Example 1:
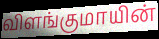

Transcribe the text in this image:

விளங்குமாயின்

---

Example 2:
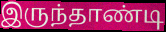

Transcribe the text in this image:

இருந்தாண்டி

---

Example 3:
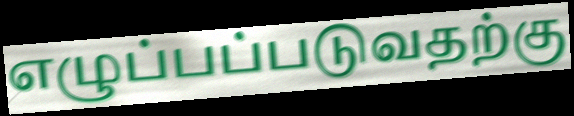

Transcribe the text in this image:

எழுப்பப்படுவதற்கு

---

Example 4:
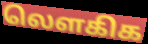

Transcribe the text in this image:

லௌகிக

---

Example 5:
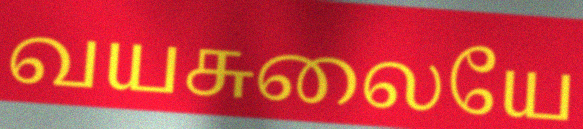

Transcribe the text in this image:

வயசுலையே